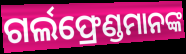
ଗର୍ଲଫ୍ରେଣ୍ଡମାନଙ୍କ